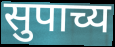
सुपाच्य